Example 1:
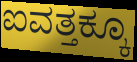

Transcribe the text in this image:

ಐವತ್ತಕ್ಕೂ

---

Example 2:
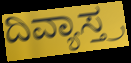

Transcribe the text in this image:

ದಿವ್ಯಾಸ್ತ್ರ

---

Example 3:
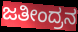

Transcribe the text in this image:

ಜತೀಂದ್ರನ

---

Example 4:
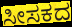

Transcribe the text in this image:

ಸೀಸಕದ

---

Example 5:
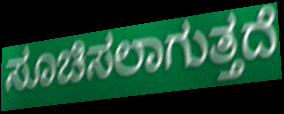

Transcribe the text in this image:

ಸೂಚಿಸಲಾಗುತ್ತದೆ